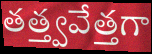
తత్త్వవేత్తగా